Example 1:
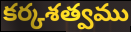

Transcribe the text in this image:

కర్కశత్వము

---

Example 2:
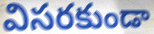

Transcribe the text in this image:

విసరకుండా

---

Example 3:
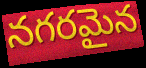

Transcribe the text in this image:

నగరమైన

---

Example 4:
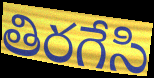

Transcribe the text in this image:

తిరగేసి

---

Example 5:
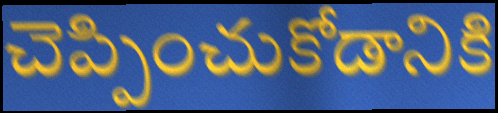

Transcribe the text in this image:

చెప్పించుకోడానికి